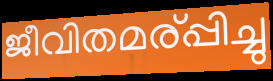
ജീവിതമര്പ്പിച്ചു